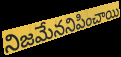
నిజమేననిపించాయి